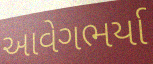
આવેગભર્યા